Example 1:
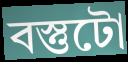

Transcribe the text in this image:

বস্তুটো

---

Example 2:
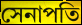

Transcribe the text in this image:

সেনাপতি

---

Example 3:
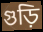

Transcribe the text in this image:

গুড়ি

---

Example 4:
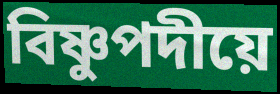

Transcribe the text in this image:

বিষ্ণুপদীয়ে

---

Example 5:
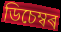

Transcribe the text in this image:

ডিচেম্বৰ